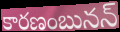
కారణంబునన్